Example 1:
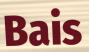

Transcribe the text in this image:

Bais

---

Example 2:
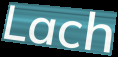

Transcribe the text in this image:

Lach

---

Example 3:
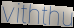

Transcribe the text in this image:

viththu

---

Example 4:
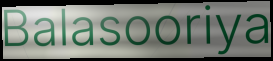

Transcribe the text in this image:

Balasooriya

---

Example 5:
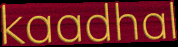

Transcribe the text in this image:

kaadhal